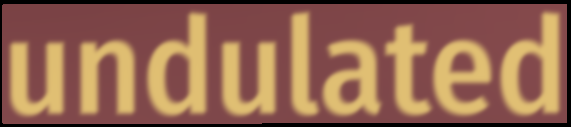
undulated